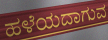
ಹಳೆಯದಾಗುವ